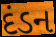
દંડન